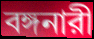
বঙ্গনারী